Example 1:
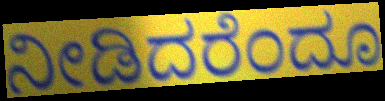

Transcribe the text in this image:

ನೀಡಿದರೆಂದೂ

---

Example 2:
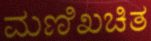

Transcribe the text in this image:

ಮಣಿಖಚಿತ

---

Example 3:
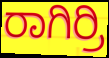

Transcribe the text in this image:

ರಾಗಿರ್ರಿ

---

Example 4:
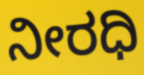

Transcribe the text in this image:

ನೀರಧಿ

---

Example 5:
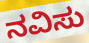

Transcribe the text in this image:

ನವಿಸು